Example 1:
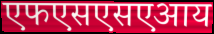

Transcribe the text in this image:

एफएसएसएआय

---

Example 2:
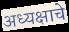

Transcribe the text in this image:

अध्यक्षाचे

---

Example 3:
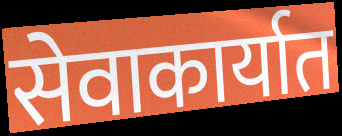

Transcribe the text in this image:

सेवाकार्यात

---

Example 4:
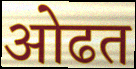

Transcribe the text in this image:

ओढत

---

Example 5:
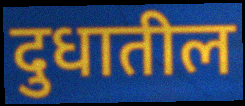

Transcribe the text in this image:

दुधातील